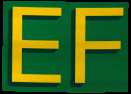
EF